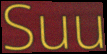
Suu